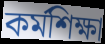
কর্মশিক্ষা